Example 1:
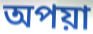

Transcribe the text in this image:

অপয়া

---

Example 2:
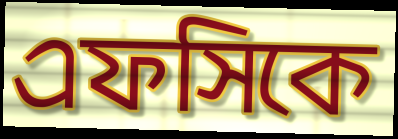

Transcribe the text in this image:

এফসিকে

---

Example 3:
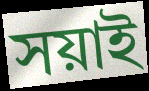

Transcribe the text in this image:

সয়াই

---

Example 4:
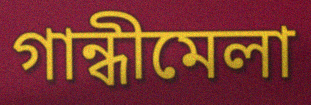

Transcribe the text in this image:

গান্ধীমেলা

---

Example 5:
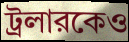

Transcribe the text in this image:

ট্রলারকেও